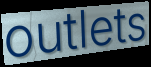
outlets